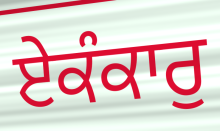
ਏਕੰਕਾਰੁ